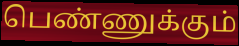
பெண்ணுக்கும்